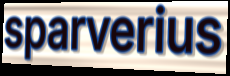
sparverius